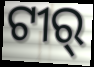
ଟୀର୍